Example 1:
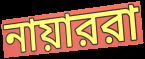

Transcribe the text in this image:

নায়াররা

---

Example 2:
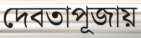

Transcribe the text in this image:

দেবতাপূজায়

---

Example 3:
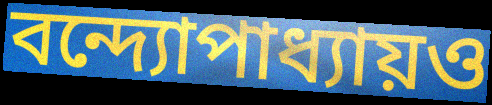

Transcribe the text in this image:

বন্দ্যোপাধ্যায়ও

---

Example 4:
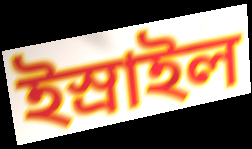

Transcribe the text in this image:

ইস্রাইল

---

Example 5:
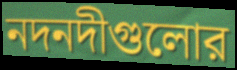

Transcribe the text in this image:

নদনদীগুলোর